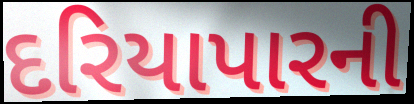
દરિયાપારની